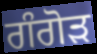
ਗੰਗੋੜ